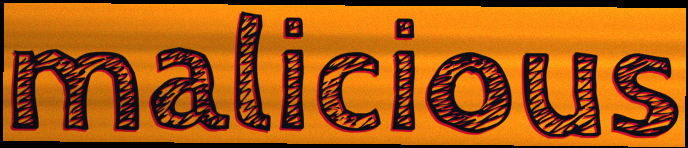
malicious